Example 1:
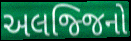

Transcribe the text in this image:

અલજ્જિનો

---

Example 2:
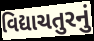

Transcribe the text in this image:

વિદ્યાચતુરનું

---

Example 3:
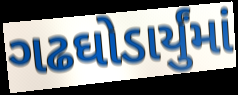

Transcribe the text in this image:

ગઢઘોડાર્યુંમાં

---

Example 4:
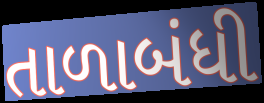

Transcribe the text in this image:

તાળાબંધી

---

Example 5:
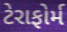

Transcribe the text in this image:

ટેરાફોર્મ